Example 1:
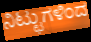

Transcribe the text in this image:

ನಿಟ್ಟುಗಳಿಂದ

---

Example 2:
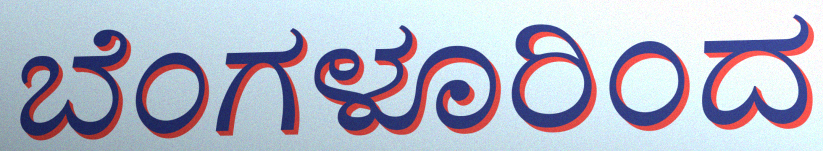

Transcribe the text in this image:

ಬೆಂಗಳೂರಿಂದ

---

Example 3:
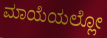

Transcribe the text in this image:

ಮಾಯೆಯಲ್ಲೋ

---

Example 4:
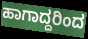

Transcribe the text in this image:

ಹಾಗಾದ್ದರಿಂದ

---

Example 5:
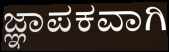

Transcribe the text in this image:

ಜ್ಞಾಪಕವಾಗಿ